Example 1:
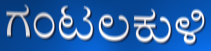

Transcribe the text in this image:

ಗಂಟಲಕುಳಿ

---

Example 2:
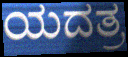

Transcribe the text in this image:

ಯದತ್ರ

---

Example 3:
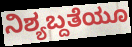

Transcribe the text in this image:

ನಿಶ್ಯಬ್ದತೆಯೂ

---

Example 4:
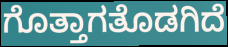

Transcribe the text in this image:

ಗೊತ್ತಾಗತೊಡಗಿದೆ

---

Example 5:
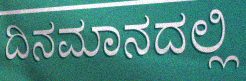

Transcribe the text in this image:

ದಿನಮಾನದಲ್ಲಿ